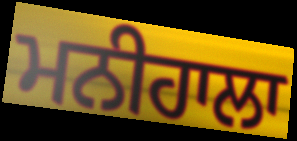
ਮਨੀਹਾਲਾ